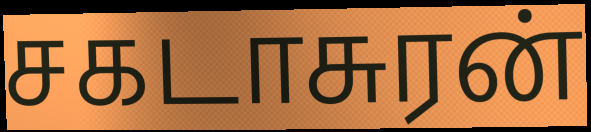
சகடாசுரன்